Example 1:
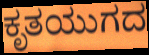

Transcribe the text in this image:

ಕೃತಯುಗದ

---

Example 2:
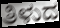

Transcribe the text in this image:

ತಿಳುದ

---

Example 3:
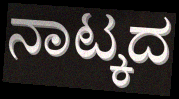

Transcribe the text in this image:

ನಾಟ್ಕದ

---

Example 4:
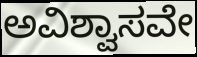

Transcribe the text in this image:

ಅವಿಶ್ವಾಸವೇ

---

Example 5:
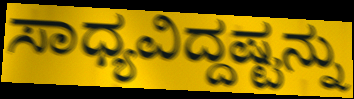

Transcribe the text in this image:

ಸಾಧ್ಯವಿದ್ದಷ್ಟನ್ನು